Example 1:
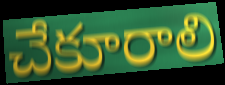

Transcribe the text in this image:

చేకూరాలి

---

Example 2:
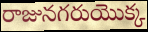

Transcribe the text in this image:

రాజునగరుయొక్క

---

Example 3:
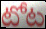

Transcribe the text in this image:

టోట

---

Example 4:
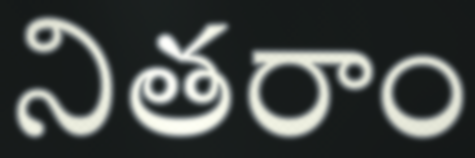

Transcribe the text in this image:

నితరాం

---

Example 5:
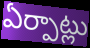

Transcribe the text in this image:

ఏర్పాట్లు